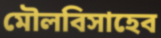
মৌলবিসাহেব